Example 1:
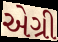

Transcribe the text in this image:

એગ્રી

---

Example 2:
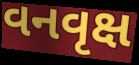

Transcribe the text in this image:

વનવૃક્ષ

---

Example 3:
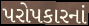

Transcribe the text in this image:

પરોપકારનાં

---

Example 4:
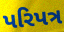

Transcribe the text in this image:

પરિપત્ર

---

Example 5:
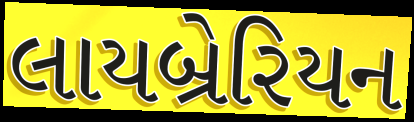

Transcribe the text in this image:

લાયબ્રેરિયન